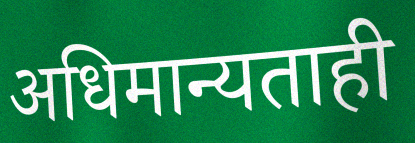
अधिमान्यताही